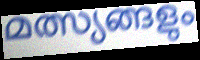
മത്സ്യങ്ങളും